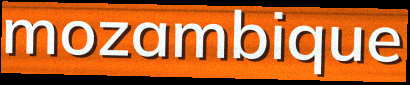
mozambique